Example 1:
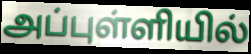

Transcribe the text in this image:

அப்புள்ளியில்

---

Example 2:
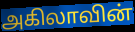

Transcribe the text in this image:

அகிலாவின்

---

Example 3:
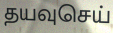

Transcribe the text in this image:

தயவுசெய்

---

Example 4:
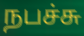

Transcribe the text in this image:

நபச்சு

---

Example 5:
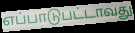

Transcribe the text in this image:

எப்பாடுபட்டாவது